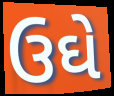
ઉઘે